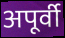
अपूर्वी